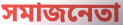
সমাজনেতা